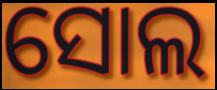
ସୋଲ